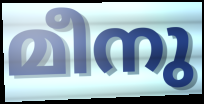
മീനു